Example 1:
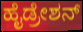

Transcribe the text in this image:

ಹೈಡ್ರೇಶನ್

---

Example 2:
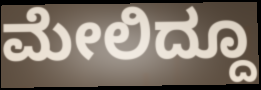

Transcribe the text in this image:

ಮೇಲಿದ್ದೂ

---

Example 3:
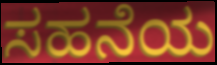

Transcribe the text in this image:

ಸಹನೆಯ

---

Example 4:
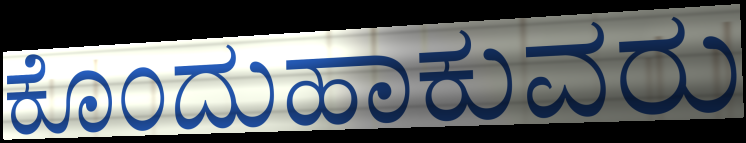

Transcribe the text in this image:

ಕೊಂದುಹಾಕುವರು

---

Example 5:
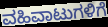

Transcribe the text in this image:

ವಹಿವಾಟುಗಳಿಗೆ